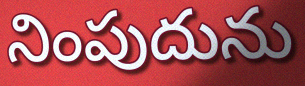
నింపుదును